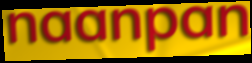
naanpan